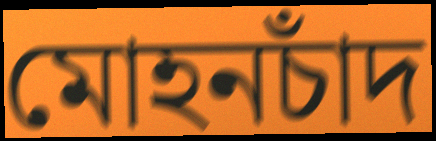
মোহনচাঁদ